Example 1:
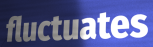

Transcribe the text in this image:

fluctuates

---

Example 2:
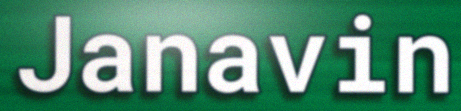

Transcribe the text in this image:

Janavin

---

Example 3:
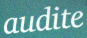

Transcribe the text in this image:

audite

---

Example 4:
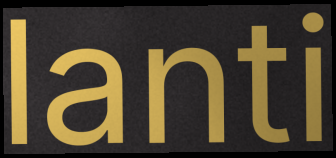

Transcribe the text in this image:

lanti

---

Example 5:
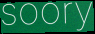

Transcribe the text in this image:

soory